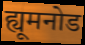
ह्यूमनोड